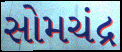
સોમચંદ્ર